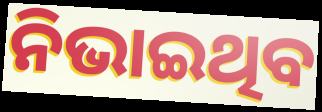
ନିଭାଇଥିବ